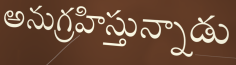
అనుగ్రహిస్తున్నాడు